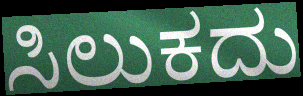
ಸಿಲುಕದು